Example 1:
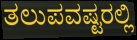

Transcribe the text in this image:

ತಲುಪವಷ್ಟರಲ್ಲಿ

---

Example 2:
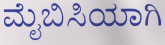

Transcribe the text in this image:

ಮೈಬಿಸಿಯಾಗಿ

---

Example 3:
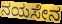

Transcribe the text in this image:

ನಯಸೇನ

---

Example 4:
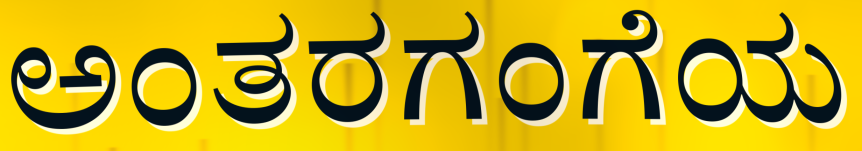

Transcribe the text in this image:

ಅಂತರಗಂಗೆಯ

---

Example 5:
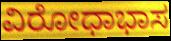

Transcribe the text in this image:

ವಿರೋಧಾಭಾಸ